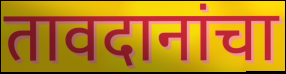
तावदानांचा